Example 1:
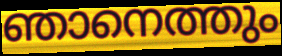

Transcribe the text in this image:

ഞാനെത്തും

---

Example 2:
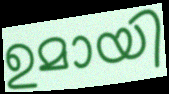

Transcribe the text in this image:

ഉമായി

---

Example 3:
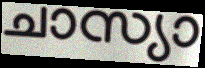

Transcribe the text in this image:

ചാസ്യാ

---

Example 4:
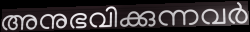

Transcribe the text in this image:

അനുഭവിക്കുന്നവർ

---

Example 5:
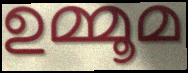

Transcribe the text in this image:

ഉമ്മൂമ